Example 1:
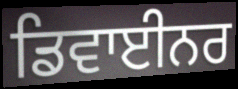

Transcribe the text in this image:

ਡਿਵਾਈਨਰ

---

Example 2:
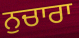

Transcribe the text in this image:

ਨੁਚਾਰਾ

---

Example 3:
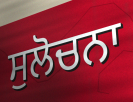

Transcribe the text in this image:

ਸੁਲੋਚਨਾ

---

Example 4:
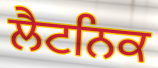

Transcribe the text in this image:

ਲੈਟਨਿਕ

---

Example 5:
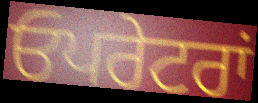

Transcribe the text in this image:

ਓਪਰੇਟਰਾਂ